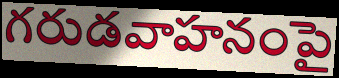
గరుడవాహనంపై